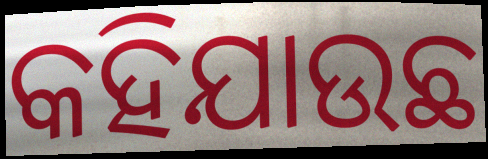
କହିଯାଉଛ